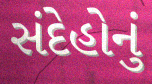
સંદેહોનું